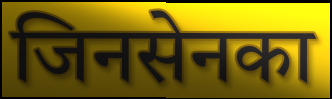
जिनसेनका